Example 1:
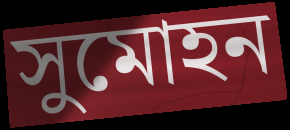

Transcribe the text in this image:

সুমোহন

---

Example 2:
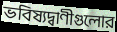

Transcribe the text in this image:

ভবিষ্যদ্বাণীগুলোর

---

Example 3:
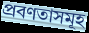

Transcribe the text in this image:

প্রবণতাসমূহ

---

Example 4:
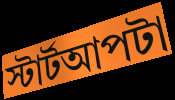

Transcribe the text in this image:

স্টার্টআপটা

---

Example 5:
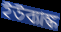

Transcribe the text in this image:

ইউব্যাঙ্ক